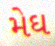
મેઘ